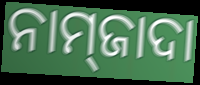
ନାମ୍‌ଜାଦା